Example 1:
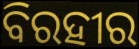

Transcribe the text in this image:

ବିରହୀର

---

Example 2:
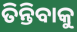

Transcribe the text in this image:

ତିନ୍ତିବାକୁ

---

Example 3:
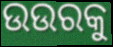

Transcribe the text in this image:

ଉଉରକୁ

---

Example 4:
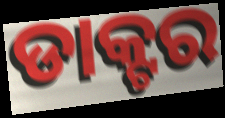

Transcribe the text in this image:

ଡାକ୍ଟର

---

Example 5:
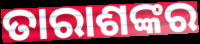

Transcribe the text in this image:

ତାରାଶଙ୍କର